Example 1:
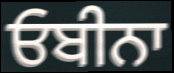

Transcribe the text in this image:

ਓਬੀਨਾ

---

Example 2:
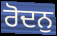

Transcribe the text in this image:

ਰੋਦਨੁ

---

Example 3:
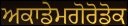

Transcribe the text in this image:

ਅਕਾਡੇਮਗੋਰੋਡੋਕ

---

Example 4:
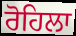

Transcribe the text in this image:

ਰੋਹਿਲਾ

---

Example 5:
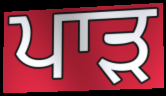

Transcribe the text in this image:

ਪਾੜ